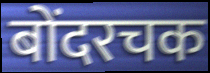
बोंदरचक